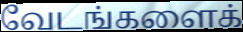
வேடங்களைக்